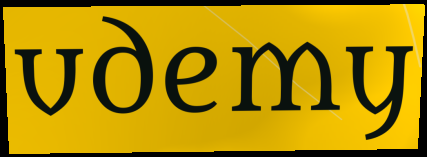
udemy